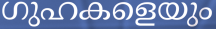
ഗുഹകളെയും